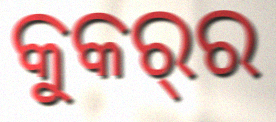
କୁକର୍‌ର